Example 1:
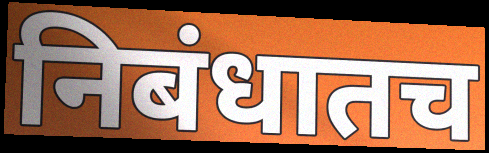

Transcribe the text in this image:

निबंधातच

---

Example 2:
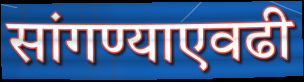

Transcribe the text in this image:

सांगण्याएवढी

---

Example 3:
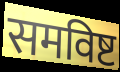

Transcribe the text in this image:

समविष्ट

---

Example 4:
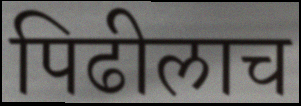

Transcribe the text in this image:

पिढीलाच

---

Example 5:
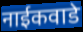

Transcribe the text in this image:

नाईकवाडे